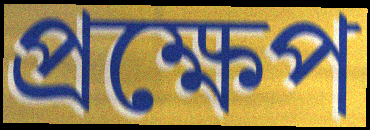
প্রক্ষেপ